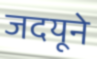
जदयूने